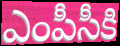
ఎంపీసీకి